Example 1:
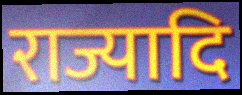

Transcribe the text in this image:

राज्यादि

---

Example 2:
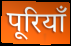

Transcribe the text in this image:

पूरियाँ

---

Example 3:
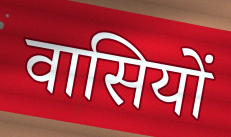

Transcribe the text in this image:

वासियों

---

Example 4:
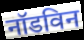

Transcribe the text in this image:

नॉडविन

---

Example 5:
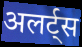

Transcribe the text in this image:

अलर्ट्स